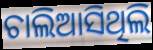
ଚାଲିଆସିଥିଲି